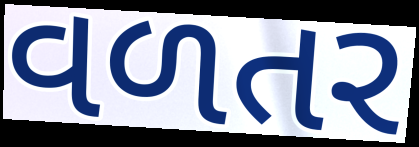
વળતર